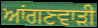
ਆਂਗਣਵਾੜੀ